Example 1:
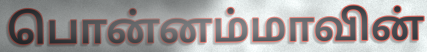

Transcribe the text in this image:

பொன்னம்மாவின்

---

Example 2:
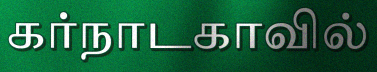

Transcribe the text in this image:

கர்நாடகாவில்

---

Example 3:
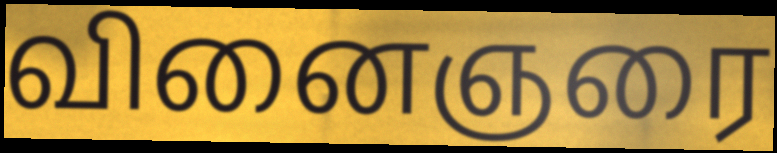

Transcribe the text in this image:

வினைஞரை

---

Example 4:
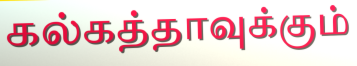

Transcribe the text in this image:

கல்கத்தாவுக்கும்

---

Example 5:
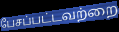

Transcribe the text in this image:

பேசப்பட்டவற்றை